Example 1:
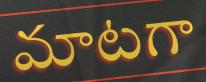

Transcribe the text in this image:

మాటగా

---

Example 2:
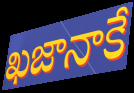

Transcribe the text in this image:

ఖజానాకే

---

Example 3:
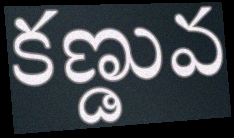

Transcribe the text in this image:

కణ్డువ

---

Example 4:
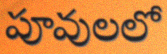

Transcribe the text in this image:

పూవులలో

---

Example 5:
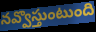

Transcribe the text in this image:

నవ్వొస్తుంటుంది